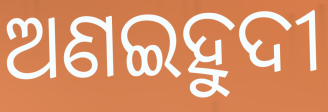
ଅଣଇହୁଦୀ